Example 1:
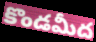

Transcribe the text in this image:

కొండమీద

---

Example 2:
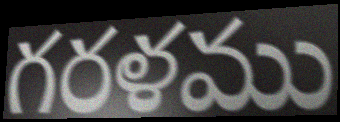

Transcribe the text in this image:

గరళము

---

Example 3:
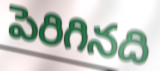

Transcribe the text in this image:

పెరిగినది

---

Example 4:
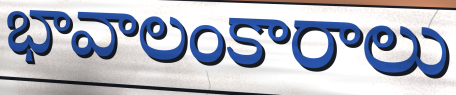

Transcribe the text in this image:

భావాలంకారాలు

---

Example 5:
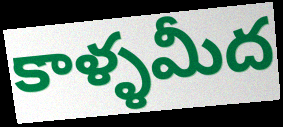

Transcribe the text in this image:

కాళ్ళమీద